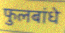
फुलबांधे